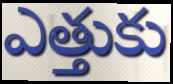
ఎత్తుకు